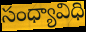
సంధ్యావిధి